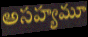
అసహ్యమూ